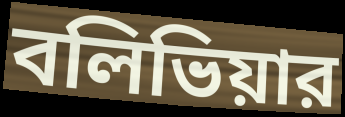
বলিভিয়ার